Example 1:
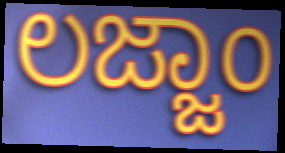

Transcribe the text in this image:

ಲಜ್ಜಾಂ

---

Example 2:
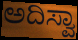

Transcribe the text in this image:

ಅದಿಸ್ವಾ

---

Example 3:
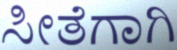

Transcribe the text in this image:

ಸೀತೆಗಾಗಿ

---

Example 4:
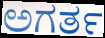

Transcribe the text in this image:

ಅಗರ್ತ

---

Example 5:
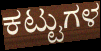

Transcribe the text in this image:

ಕಟ್ಟುಗಳ